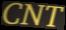
CNT